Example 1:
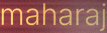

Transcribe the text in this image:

maharaj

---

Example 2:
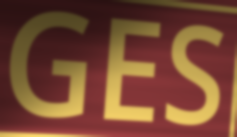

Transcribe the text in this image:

GES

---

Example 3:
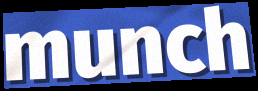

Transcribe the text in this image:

munch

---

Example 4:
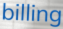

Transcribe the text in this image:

billing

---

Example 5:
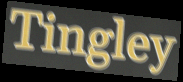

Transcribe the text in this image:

Tingley